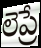
లెప్రే